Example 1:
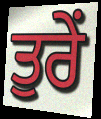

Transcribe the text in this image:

ਤੁਰੇਂ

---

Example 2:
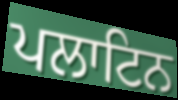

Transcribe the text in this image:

ਪਲਾਟਿਨ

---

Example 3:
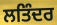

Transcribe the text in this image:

ਲਤਿੰਦਰ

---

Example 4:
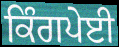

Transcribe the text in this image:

ਕਿੰਗਪੇਈ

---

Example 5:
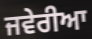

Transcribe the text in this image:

ਜਵੇਰੀਆ